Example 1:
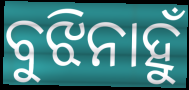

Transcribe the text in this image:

ବୁଝିନାହୁଁ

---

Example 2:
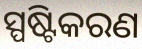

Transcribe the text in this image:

ସ୍ପଷ୍ଟିକରଣ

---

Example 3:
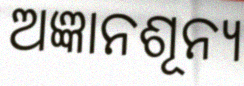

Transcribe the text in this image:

ଅଜ୍ଞାନଶୂନ୍ୟ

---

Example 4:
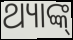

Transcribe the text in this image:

ଥ୍ୟାଙ୍କ୍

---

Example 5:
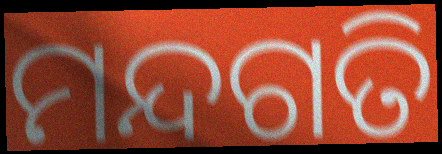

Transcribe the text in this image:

ମନ୍ଦଗତି